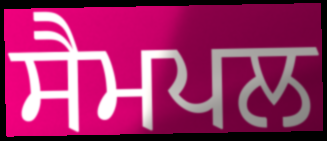
ਸੈਮਪਲ